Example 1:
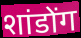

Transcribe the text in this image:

शांडोंग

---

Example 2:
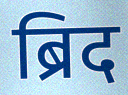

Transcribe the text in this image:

ब्रिद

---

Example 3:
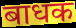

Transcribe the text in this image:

बाधक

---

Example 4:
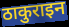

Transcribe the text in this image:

ठाकुराइन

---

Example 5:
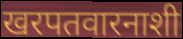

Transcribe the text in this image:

खरपतवारनाशी